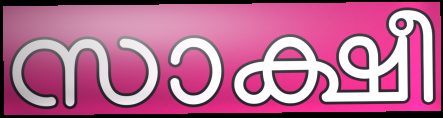
സാക്ഷീ